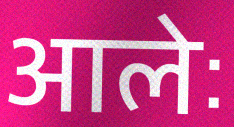
आलेः